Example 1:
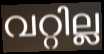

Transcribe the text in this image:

വറ്റില്ല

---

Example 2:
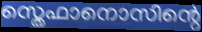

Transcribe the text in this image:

സ്തെഫാനൊസിന്റെ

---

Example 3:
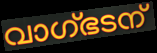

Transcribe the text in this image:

വാഗ്ഭടന്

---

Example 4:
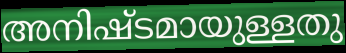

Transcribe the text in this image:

അനിഷ്ടമായുള്ളതു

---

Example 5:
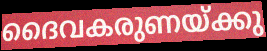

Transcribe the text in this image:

ദൈവകരുണയ്ക്കു